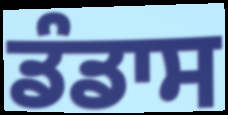
ਡੰਡਾਸ